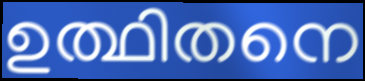
ഉത്ഥിതനെ